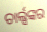
ଚାର୍ଲ୍ସଙ୍କର